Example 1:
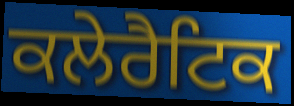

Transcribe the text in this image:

ਕਲੇਰੈਟਿਕ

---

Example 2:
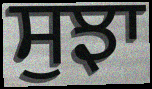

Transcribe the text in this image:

ਸੁਝਾ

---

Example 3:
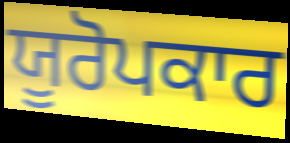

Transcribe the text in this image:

ਯੂਰੋਪਕਾਰ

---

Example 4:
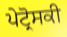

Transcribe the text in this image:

ਪੇਟ੍ਰੋਸਕੀ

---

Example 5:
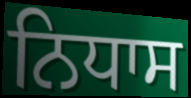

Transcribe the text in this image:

ਨਿਧਾਸ